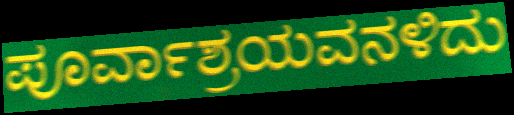
ಪೂರ್ವಾಶ್ರಯವನಳಿದು